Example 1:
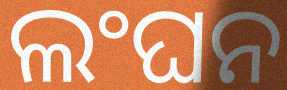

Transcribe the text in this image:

ଲଂଘନ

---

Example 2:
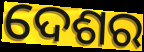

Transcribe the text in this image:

ଦେଶର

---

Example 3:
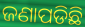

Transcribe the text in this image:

ଜଣାପଡିଛି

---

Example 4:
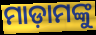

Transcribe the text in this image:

ମାଡ଼ାମଙ୍କୁ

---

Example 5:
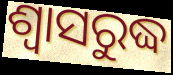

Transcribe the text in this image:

ଶ୍ୱାସରୁଦ୍ଧ